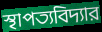
স্থাপত্যবিদ্যার